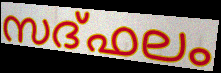
സദ്ഫലം